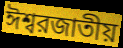
ঈশ্বরজাতীয়